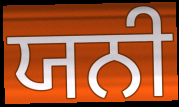
ਯਨੀ